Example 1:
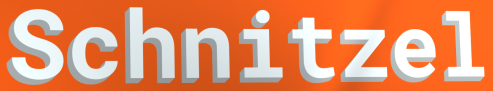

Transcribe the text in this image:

Schnitzel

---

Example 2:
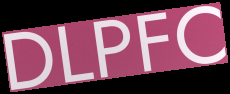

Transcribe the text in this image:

DLPFC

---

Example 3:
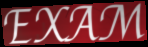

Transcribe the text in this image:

EXAM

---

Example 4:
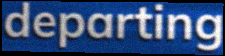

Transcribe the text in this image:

departing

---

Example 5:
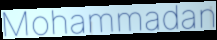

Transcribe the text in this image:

Mohammadan